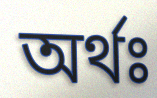
অর্থঃ